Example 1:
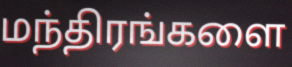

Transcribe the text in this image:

மந்திரங்களை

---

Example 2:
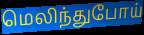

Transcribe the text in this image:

மெலிந்துபோய்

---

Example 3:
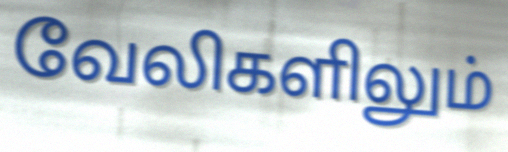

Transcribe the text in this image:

வேலிகளிலும்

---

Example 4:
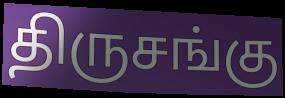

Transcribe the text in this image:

திருசங்கு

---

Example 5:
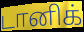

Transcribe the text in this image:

டானிக்